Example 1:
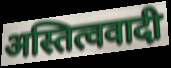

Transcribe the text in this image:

अस्तित्ववादी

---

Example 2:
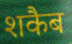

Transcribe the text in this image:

शकैब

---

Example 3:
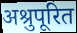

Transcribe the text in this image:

अश्रुपूरित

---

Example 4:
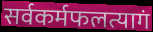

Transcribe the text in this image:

सर्वकर्मफलत्यागं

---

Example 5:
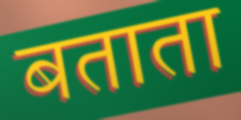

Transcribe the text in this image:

बताता